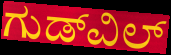
ಗುಡ್‌ವಿಲ್